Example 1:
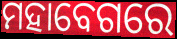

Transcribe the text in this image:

ମହାବେଗରେ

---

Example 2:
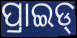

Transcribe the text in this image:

ପ୍ରାଇଡ୍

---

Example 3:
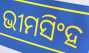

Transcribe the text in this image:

ଭୀମସିଂହ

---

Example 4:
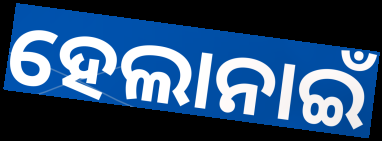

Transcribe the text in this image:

ହେଲାନାଇଁ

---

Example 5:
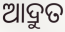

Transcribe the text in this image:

ଆଦ୍ରୁତ